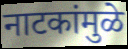
नाटकांमुळे